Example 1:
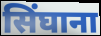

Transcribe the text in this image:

सिंघाना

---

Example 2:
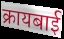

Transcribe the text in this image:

क्रायबाई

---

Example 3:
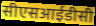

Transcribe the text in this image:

सीएसआईडीसी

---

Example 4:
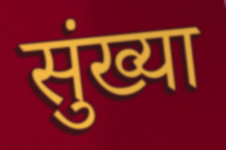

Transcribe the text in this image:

सुंख्या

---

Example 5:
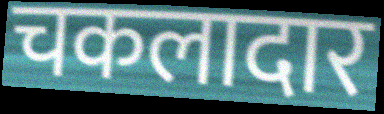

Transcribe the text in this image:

चकलादार